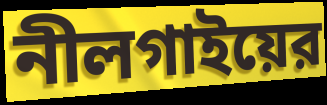
নীলগাইয়ের